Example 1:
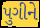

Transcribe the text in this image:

પુગીને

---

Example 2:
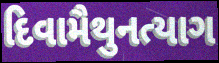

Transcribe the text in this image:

દિવામૈથુનત્યાગ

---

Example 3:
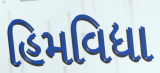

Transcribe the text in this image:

હિમવિદ્યા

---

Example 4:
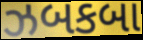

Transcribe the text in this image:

ઝબકબા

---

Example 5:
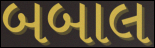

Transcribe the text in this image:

બબાલ